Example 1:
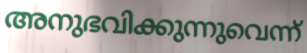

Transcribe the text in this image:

അനുഭവിക്കുന്നുവെന്ന്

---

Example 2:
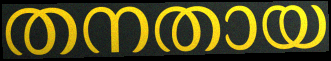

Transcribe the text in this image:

തനതായ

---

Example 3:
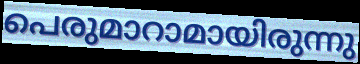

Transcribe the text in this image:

പെരുമാറാമായിരുന്നു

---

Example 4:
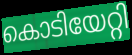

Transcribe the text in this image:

കൊടിയേറ്റി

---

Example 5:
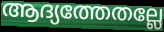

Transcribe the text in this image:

ആദ്യത്തേതല്ലേ